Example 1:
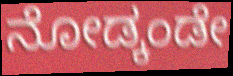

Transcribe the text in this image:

ನೋಡ್ಕಂಡೇ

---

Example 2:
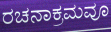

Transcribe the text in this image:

ರಚನಾಕ್ರಮವೂ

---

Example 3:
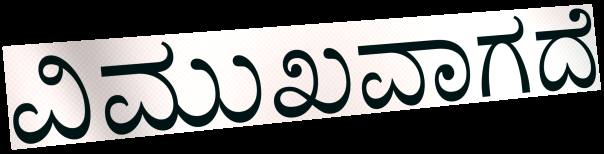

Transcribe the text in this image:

ವಿಮುಖವಾಗದೆ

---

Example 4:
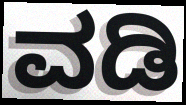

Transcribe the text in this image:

ವಡಿ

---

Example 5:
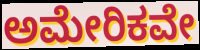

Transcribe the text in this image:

ಅಮೇರಿಕವೇ